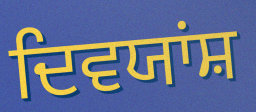
ਦਿਵਯਾਂਸ਼